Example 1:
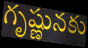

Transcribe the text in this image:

గృష్ణునకు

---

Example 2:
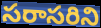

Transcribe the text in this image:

సరాసరిని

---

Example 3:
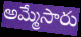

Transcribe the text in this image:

అమ్మేసారు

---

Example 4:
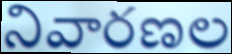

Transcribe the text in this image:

నివారణల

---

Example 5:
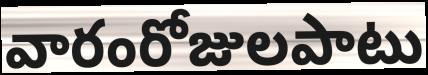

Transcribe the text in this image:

వారంరోజులపాటు